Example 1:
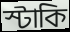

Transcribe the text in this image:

স্টাকি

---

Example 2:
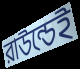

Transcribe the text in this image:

রাউন্ডেই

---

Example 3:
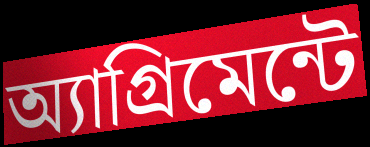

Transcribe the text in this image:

অ্যাগ্রিমেন্টে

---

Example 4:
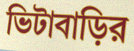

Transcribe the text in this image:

ভিটাবাড়ির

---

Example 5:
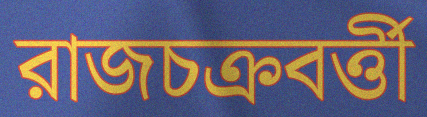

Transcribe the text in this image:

রাজচক্রবর্ত্তী